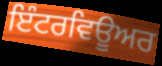
ਇੰਟਰਵਿਊਅਰ